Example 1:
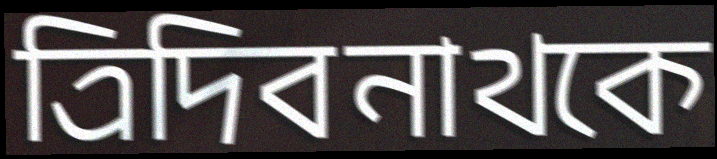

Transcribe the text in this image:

ত্রিদিবনাথকে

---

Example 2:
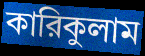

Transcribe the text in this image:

কারিকুলাম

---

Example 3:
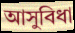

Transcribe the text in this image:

আসুবিধা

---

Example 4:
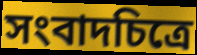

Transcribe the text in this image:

সংবাদচিত্রে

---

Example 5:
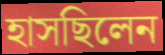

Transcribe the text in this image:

হাসছিলেন